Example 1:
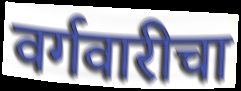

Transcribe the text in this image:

वर्गवारीचा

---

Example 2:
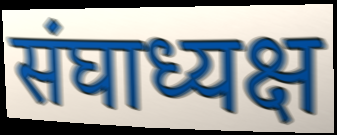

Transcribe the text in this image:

संघाध्यक्ष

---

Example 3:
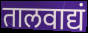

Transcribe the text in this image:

तालवाद्यं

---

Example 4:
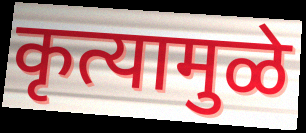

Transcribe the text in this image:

कृत्यामुळे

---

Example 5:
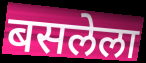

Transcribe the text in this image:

बसलेला